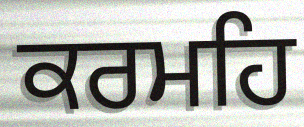
ਕਰਮਹਿ